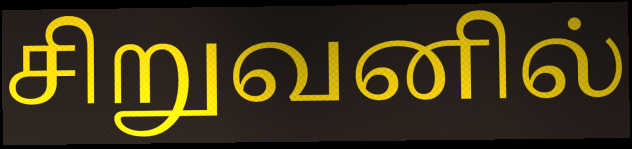
சிறுவனில்